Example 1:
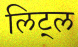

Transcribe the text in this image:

लिट्‌ल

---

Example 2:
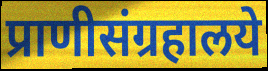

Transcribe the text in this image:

प्राणीसंग्रहालये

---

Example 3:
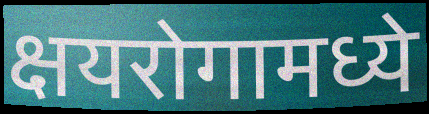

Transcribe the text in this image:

क्षयरोगामध्ये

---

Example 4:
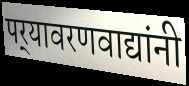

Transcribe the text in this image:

पर्यावरणवाद्यांनी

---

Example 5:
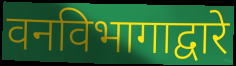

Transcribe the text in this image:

वनविभागाद्वारे